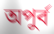
অপুর্ব